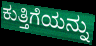
ಕುತ್ತಿಗೆಯನ್ನು